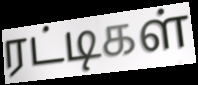
ரட்டிகள்